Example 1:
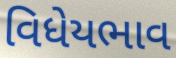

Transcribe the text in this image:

વિધેયભાવ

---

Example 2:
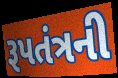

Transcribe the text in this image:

રૂપતંત્રની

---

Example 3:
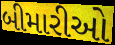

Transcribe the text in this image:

બીમારીઓ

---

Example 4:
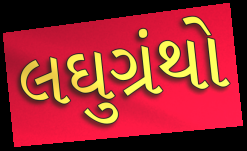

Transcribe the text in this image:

લઘુગ્રંથો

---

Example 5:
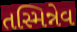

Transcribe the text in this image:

તસ્મિન્નેવ